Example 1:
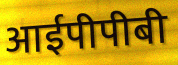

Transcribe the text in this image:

आईपीपीबी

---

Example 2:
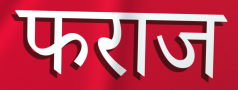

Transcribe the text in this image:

फराज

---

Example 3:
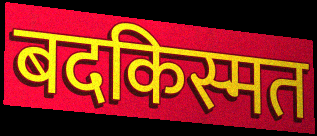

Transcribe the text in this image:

बदकिस्‍मत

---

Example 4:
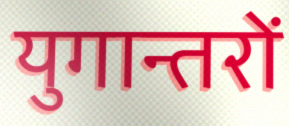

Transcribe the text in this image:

युगान्तरों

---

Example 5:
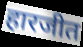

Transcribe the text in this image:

हारजीत